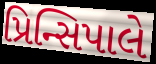
પ્રિન્સિપાલે